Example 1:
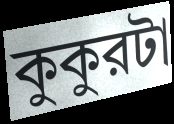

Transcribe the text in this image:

কুকুরটা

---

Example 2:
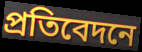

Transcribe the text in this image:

প্রতিবেদনে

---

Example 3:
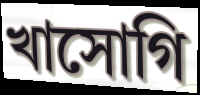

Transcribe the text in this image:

খাসোগি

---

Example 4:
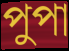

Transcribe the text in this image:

পুপা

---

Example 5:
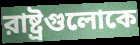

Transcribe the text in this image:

রাষ্ট্রগুলোকে